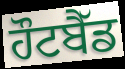
ਹੌਟਬੈੱਡ